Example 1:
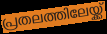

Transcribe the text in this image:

പ്രതലത്തിലേയ്ക്ക്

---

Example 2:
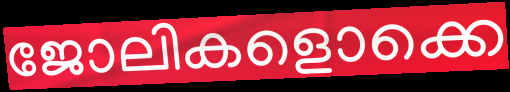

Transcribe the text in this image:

ജോലികളൊക്കെ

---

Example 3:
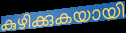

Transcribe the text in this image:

കുഴിക്കുകയായി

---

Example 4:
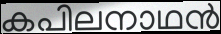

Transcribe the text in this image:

കപിലനാഥൻ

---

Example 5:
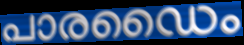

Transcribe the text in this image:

പാരഡൈം